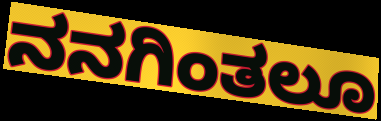
ನನಗಿಂತಲೂ